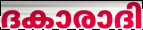
ദകാരാദി